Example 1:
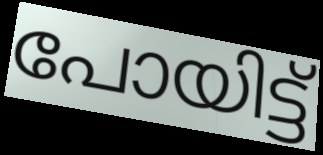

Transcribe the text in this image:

പോയിട്ട്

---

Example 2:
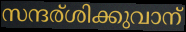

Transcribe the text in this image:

സന്ദര്ശിക്കുവാന്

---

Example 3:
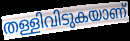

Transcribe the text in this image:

തള്ളിവിടുകയാണ്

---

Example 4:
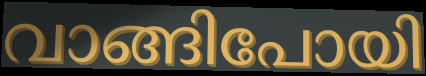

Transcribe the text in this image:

വാങ്ങിപോയി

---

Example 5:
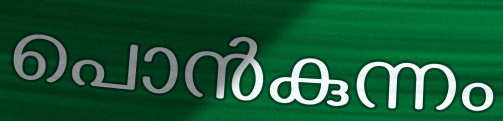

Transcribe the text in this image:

പൊൻകുന്നം